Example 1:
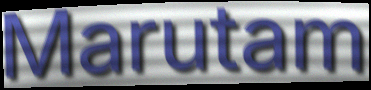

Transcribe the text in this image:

Marutam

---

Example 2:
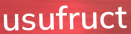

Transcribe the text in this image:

usufruct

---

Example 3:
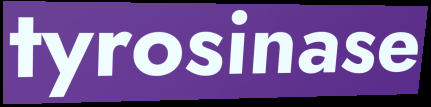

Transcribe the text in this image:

tyrosinase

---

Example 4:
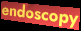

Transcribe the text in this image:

endoscopy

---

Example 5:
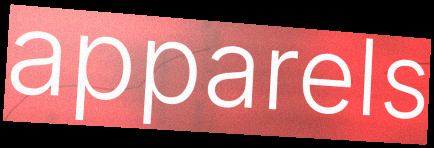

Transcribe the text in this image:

apparels